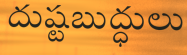
దుష్టబుద్ధులు